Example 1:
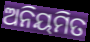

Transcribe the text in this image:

ଅନିୟମିତ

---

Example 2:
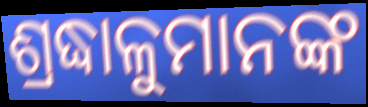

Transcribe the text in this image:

ଶ୍ରଦ୍ଧାଳୁମାନଙ୍କ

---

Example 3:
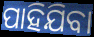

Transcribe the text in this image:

ପାହିଯିବା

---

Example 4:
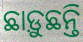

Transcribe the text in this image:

ଛାଡ଼ୁଛନ୍ତି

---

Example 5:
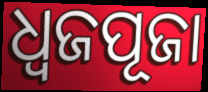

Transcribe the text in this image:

ଧ୍ୱଜପୂଜା